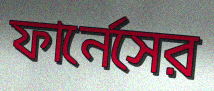
ফার্নেসের